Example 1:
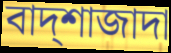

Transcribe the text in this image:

বাদ্শাজাদা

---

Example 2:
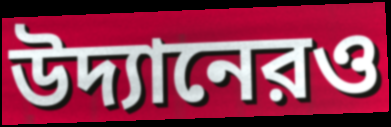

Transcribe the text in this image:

উদ্যানেরও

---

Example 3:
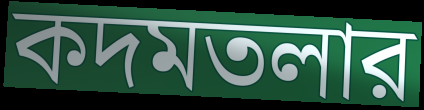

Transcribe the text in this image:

কদমতলার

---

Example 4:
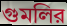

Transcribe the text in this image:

গুমলির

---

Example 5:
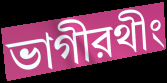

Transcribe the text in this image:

ভাগীরথীং